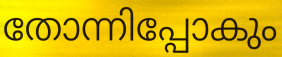
തോന്നിപ്പോകും